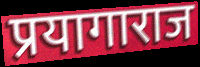
प्रयागाराज